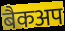
बैकअप